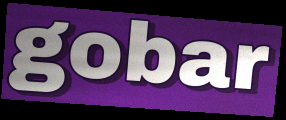
gobar